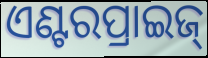
ଏଣ୍ଟରପ୍ରାଇଜ୍